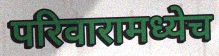
परिवारामध्येच